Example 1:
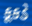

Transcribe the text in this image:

કૂકડે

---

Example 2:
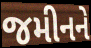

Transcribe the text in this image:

જમીનને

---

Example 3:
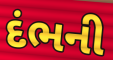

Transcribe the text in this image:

દંભની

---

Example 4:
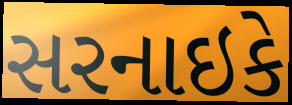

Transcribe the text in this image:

સરનાઇકે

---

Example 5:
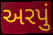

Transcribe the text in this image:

અરપું